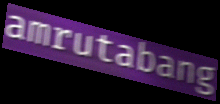
amrutabang